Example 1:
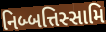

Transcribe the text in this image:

નિબ્બત્તિસ્સામિ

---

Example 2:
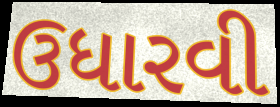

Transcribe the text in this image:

ઉધારવી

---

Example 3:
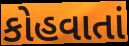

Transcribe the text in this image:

કોહવાતાં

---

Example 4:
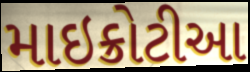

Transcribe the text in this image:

માઇક્રોટીઆ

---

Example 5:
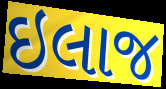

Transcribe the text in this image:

ઇલાજ